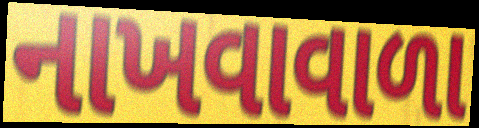
નાખવાવાળા